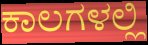
ಕಾಲಗಳಲ್ಲಿ